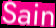
Sain